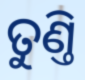
ତୁଣ୍ତି